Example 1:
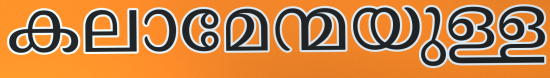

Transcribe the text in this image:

കലാമേന്മയുള്ള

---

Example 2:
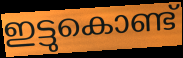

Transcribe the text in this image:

ഇട്ടുകൊണ്ട്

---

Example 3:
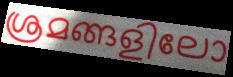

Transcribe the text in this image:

ശ്രമങ്ങളിലോ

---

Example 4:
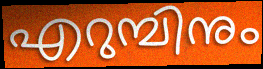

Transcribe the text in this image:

എറുമ്പിനും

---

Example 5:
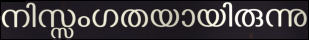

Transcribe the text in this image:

നിസ്സംഗതയായിരുന്നു